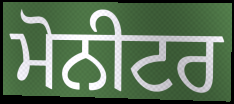
ਮੋਨੀਟਰ